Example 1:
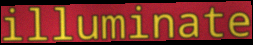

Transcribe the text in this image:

illuminate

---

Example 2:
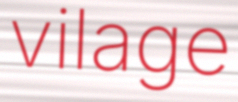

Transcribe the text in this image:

vilage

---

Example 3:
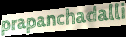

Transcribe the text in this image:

prapanchadalli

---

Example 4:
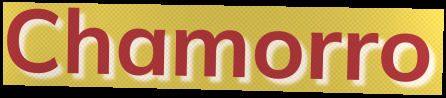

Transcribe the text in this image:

Chamorro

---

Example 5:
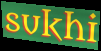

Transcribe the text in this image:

sukhi